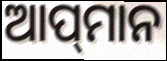
ଆପ୍‌ମାନ